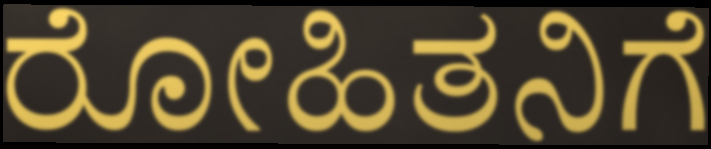
ರೋಹಿತನಿಗೆ